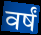
वर्षं